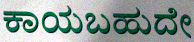
ಕಾಯಬಹುದೇ